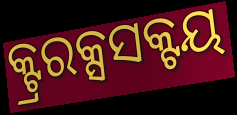
କ୍ଟ୍ରରକ୍ସସକ୍ଟୟ